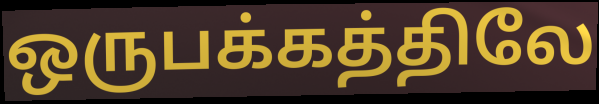
ஒருபக்கத்திலே